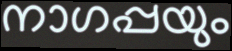
നാഗപ്പയും